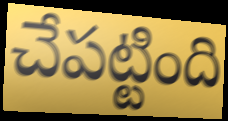
చేపట్టింది